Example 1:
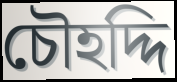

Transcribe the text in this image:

চৌহদ্দি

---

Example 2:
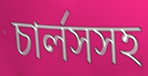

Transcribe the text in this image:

চার্লসসহ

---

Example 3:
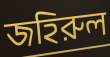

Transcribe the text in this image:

জহিরুল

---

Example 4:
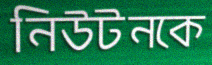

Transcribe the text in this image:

নিউটনকে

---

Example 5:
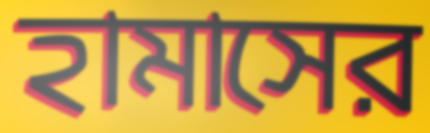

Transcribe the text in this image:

হামাসের